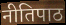
नीतिपाठ